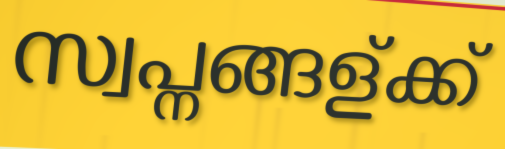
സ്വപ്നങ്ങള്ക്ക്